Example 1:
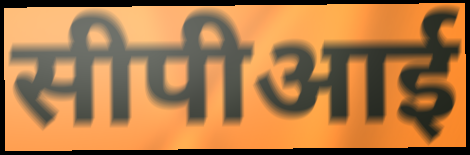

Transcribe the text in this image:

सीपीआई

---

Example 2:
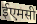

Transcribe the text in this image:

ईएमसी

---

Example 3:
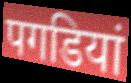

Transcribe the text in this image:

पगडियां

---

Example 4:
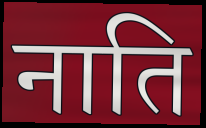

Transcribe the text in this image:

नाति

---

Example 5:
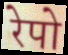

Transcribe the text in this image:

रेपो